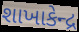
શાખાકેન્દ્ર